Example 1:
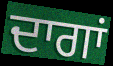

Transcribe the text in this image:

ਦਾਗਾਂ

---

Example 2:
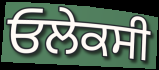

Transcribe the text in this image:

ਓਲੇਕਸੀ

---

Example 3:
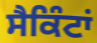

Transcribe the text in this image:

ਸੈਕਿੰਟਾਂ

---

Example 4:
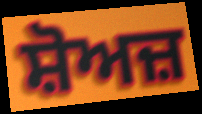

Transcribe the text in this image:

ਸ਼ੋਅਜ਼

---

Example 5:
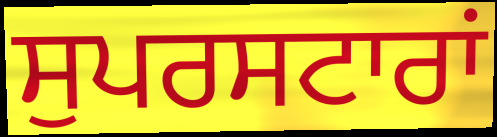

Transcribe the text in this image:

ਸੁਪਰਸਟਾਰਾਂ